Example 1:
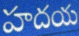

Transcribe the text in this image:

హదయ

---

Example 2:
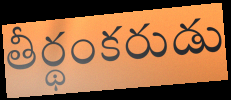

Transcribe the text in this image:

తీర్థంకరుడు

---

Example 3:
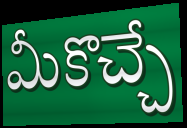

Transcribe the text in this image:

మీకొచ్చే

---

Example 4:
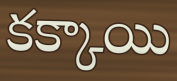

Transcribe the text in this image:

కక్కాయి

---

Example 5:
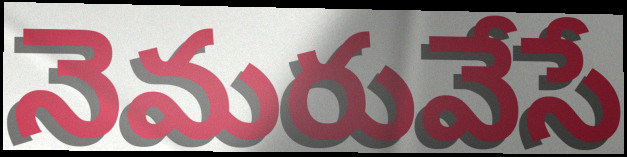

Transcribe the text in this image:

నెమరువేసే